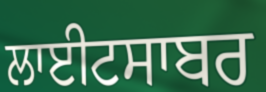
ਲਾਈਟਸਾਬਰ